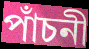
পাঁচনী